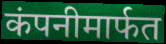
कंपनीमार्फत